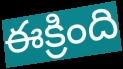
ఈక్రింది